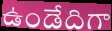
ఉండేదిగా